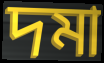
দমা